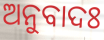
ଅନୁବାଦଃ